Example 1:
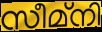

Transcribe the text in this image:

സീമ്നി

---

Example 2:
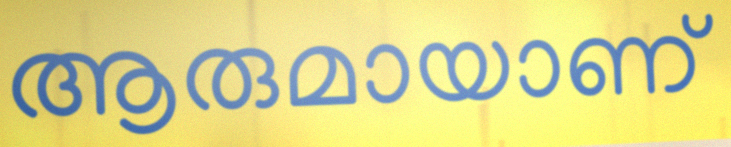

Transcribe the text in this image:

ആരുമായാണ്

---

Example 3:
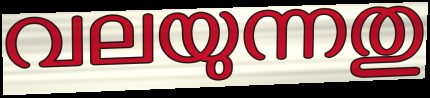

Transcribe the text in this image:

വലയുന്നതു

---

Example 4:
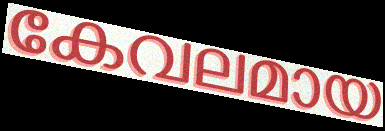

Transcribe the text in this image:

കേവലമായ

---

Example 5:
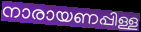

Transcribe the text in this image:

നാരായണപ്പിള്ള